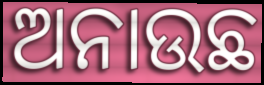
ଅନାଉଛ